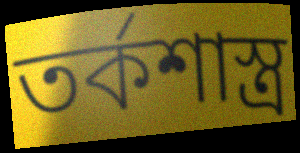
তর্কশাস্ত্র